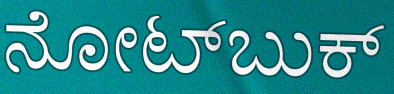
ನೋಟ್‌ಬುಕ್